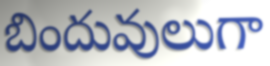
బిందువులుగా